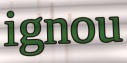
ignou